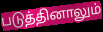
படுத்தினாலும்